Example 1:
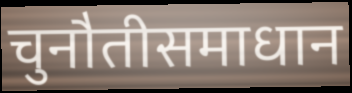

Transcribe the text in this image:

चुनौतीसमाधान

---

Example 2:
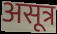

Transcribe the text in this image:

असूत्र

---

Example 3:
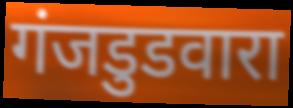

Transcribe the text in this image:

गंजडुडवारा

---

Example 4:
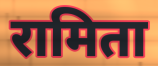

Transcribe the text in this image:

रामिता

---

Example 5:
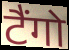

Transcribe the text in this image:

टैंगो